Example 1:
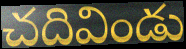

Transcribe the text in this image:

చదివిండు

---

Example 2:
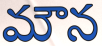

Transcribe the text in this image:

మౌన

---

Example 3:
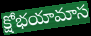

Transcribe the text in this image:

క్షోభయామాస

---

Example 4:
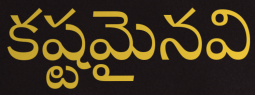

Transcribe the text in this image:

కష్టమైనవి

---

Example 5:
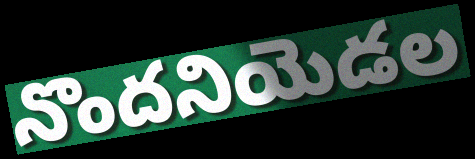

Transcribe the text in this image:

నొందనియెడల